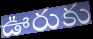
ఊరుకు